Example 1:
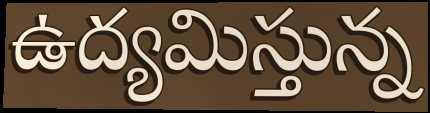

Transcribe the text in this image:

ఉద్యమిస్తున్న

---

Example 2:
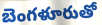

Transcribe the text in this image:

బెంగళూరుతో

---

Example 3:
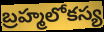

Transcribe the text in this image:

బ్రహ్మలోకస్య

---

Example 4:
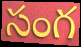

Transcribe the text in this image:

సంగ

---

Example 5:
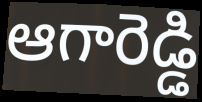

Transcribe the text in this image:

ఆగారెడ్డి